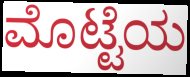
ಮೊಟ್ಟೆಯ